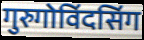
गुरुगोविंदसिंग